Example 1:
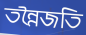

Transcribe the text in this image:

তন্নৈজতি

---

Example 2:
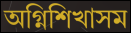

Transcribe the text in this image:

অগ্নিশিখাসম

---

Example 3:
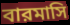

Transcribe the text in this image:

বারমাসি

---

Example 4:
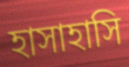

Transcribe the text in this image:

হাসাহাসি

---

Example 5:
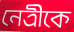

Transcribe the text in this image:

নেত্রীকে